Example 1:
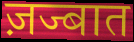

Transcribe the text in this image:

ज़ज्बात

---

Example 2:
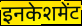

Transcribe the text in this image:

इनकेशमेंट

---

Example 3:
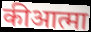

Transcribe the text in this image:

कीआत्मा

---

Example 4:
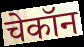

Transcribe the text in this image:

चेकॉन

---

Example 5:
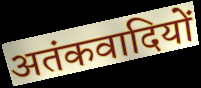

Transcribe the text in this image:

अतंकवादियों